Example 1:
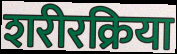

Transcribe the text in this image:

शरीरक्रिया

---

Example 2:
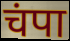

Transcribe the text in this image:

चंपा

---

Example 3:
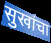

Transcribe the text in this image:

सुखांचा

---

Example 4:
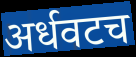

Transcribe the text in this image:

अर्धवटच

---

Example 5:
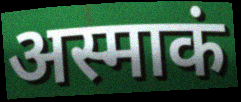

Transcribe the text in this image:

अस्माकं